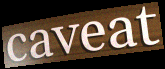
caveat